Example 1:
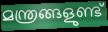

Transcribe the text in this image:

മന്ത്രങ്ങളുണ്ട്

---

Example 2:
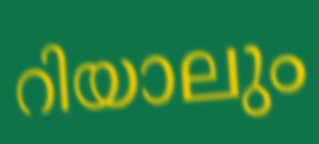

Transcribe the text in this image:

റിയാലും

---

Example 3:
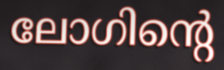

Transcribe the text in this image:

ലോഗിന്റെ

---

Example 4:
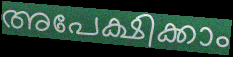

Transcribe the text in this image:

അപേക്ഷിക്കാം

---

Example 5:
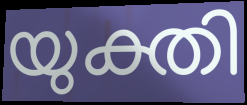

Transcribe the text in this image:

യുക്തി